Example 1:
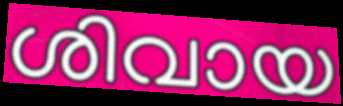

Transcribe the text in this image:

ശിവായ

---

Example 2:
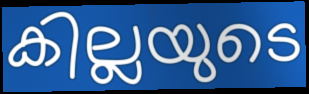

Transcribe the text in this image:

കില്ലയുടെ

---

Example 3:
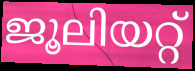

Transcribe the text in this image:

ജൂലിയറ്റ്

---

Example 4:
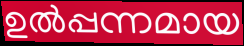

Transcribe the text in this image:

ഉൽപ്പന്നമായ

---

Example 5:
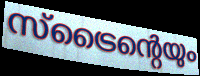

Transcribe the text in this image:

സ്ട്രൈന്റെയും